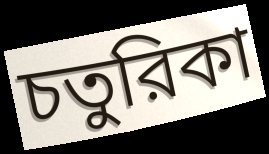
চতুরিকা